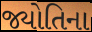
જ્યોતિના